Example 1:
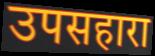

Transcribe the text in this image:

उपसहारा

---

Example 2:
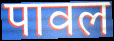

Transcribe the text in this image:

पावल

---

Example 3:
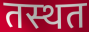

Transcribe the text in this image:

तस्थत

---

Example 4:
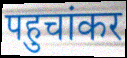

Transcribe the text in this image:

पहुचांकर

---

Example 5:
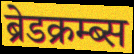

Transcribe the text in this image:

ब्रेडक्रम्ब्स